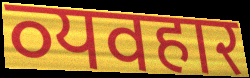
व्‍यवहार